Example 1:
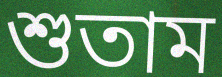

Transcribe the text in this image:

শুতাম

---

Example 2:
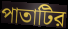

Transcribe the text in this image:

পাতাটির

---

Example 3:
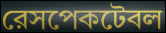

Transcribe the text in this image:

রেসপেকটেবল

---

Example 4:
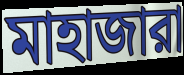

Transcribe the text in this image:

মাহাজারা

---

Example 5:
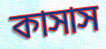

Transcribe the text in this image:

কাসাস